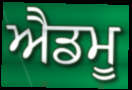
ਐਡਮੂ